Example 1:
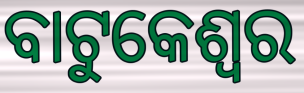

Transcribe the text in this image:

ବାଟୁକେଶ୍ୱର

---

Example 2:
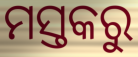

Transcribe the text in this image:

ମସ୍ତକରୁ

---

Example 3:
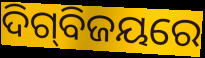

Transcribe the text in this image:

ଦିଗ୍‌ବିଜୟରେ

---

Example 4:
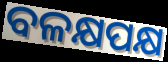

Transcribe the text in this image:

ବଳକ୍ଷପକ୍ଷ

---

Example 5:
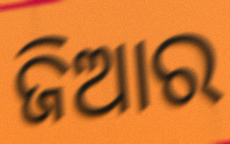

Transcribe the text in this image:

ଜିଆର